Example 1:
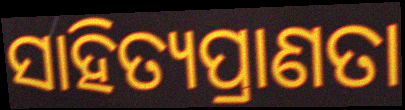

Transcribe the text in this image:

ସାହିତ୍ୟପ୍ରାଣତା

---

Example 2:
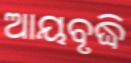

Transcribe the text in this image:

ଆୟବୃଦ୍ଧି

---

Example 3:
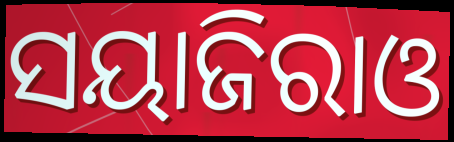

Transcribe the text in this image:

ସୟାଜିରାଓ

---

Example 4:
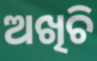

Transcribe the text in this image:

ଅଖିଚି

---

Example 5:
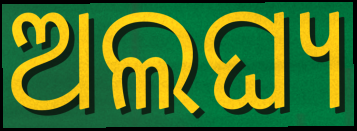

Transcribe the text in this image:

ଅଲଘ୍ୟ